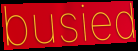
busied